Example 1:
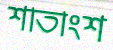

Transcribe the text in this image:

শাতাংশ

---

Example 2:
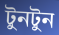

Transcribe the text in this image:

টুনটুন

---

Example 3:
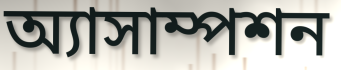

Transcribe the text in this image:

অ্যাসাম্পশন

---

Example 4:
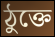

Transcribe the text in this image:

ঠুক্তে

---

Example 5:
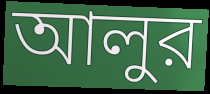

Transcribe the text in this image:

আলুর